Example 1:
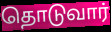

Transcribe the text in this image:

தொடுவார்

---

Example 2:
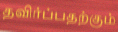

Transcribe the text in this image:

தவிர்ப்பதற்கும்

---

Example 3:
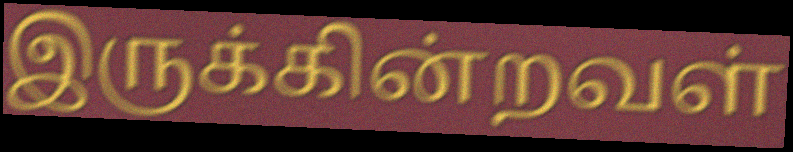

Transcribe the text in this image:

இருக்கின்றவள்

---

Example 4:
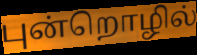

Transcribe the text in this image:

புன்றொழில்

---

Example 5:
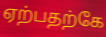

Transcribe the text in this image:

ஏற்பதற்கே